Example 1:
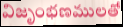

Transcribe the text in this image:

విజృంభణములతో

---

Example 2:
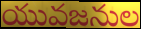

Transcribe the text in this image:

యువజనుల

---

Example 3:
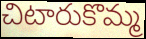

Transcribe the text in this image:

చిటారుకొమ్మ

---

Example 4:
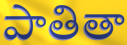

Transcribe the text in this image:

పాతితా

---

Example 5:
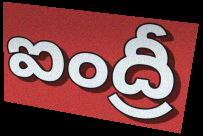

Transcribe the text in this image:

ఐంద్రీ